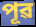
পূৱ